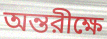
অন্তরীক্ষে